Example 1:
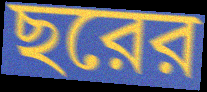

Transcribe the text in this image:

ছরের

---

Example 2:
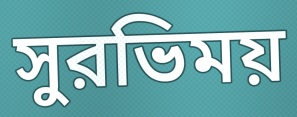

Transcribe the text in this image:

সুরভিময়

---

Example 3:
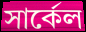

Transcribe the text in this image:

সার্কেল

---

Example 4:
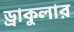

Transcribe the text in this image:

ড্রাকুলার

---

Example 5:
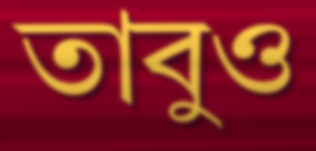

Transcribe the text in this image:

তাবুও